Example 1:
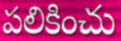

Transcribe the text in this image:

పలికించు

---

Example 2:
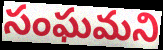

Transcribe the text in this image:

సంఘమని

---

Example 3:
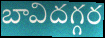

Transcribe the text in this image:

బావిదగ్గర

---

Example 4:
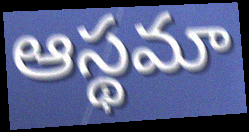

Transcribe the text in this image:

ఆస్థమా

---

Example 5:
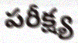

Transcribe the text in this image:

పరీక్ష్య